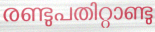
രണ്ടുപതിറ്റാണ്ടു